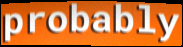
probably